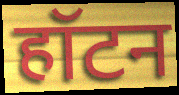
हॉटन